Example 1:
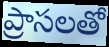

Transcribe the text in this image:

ప్రాసలతో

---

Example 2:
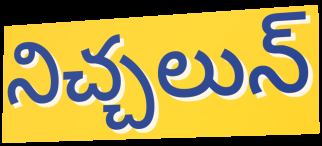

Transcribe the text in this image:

నిచ్చలున్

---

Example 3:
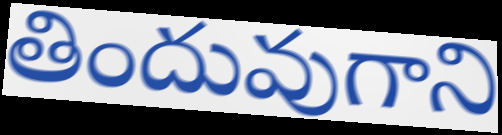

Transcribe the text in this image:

తిందువుగాని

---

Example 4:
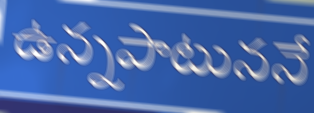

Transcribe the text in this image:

ఉన్నపాటుననే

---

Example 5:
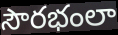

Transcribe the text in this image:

సౌరభంలా